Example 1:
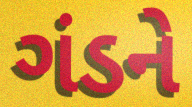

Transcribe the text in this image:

ગંડને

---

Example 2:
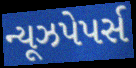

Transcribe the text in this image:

ન્યૂઝપેપર્સ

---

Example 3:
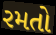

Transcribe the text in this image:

રમતો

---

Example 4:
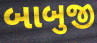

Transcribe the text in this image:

બાબુજી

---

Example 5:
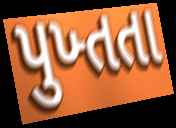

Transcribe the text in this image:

પુખ્તતા